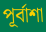
পূর্বাশা